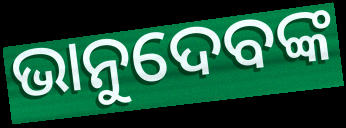
ଭାନୁଦେବଙ୍କ